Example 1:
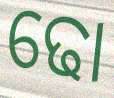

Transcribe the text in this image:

ଢୋ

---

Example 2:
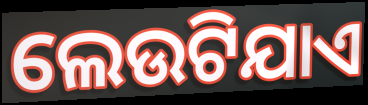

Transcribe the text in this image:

ଲେଉଟିଯାଏ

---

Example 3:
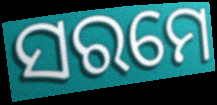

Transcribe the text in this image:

ସରମେ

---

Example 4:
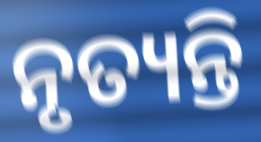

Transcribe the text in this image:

ନୃତ୍ୟନ୍ତି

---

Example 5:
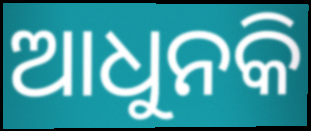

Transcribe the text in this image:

ଆଧୁନକି